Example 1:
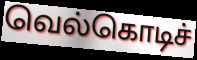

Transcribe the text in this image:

வெல்கொடிச்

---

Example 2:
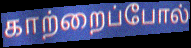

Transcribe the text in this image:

காற்றைப்போல்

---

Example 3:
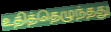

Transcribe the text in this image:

உதித்தெழுந்தது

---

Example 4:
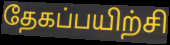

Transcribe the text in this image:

தேகப்பயிற்சி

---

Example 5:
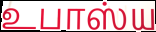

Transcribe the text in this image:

உபாஸ்ய